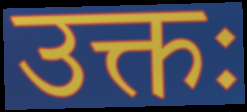
उक्तः